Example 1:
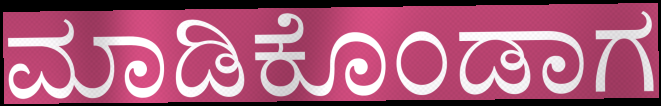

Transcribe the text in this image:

ಮಾಡಿಕೊಂಡಾಗ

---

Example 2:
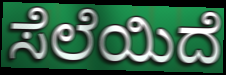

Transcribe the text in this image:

ಸೆಲೆಯಿದೆ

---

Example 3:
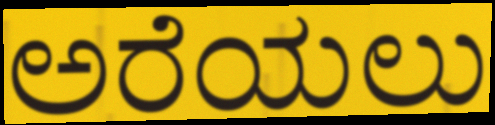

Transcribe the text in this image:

ಅರೆಯಲು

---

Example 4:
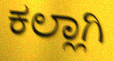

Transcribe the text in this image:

ಕಲ್ಲಾಗಿ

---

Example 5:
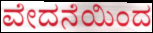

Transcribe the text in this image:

ವೇದನೆಯಿಂದ